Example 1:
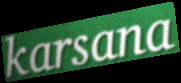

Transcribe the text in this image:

karsana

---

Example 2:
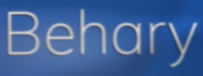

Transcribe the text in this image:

Behary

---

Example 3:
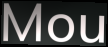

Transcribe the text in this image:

Mou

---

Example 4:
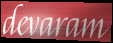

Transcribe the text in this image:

devaram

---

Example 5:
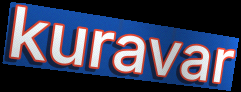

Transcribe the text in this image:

kuravar